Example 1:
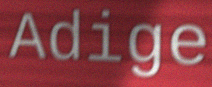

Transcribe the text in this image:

Adige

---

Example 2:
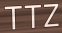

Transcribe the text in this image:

TTZ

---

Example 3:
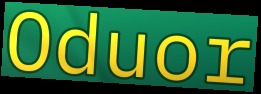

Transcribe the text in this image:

Oduor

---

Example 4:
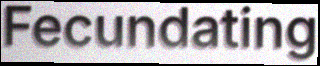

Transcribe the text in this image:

Fecundating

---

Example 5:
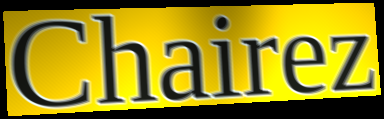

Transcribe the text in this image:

Chairez